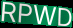
RPWD